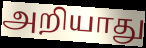
அறியாது